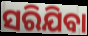
ସରିଯିବା